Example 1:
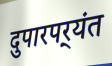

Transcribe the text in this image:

दुपारपर्यंत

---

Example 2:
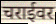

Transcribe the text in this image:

चराईवर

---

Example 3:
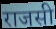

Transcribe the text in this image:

राजसी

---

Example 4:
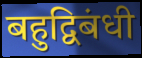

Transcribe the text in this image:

बहुद्विबंधी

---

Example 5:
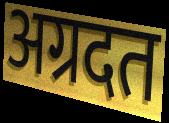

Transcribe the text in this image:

अग्रदत